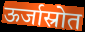
ऊर्जास्रोत